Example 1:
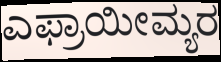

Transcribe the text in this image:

ಎಫ್ರಾಯೀಮ್ಯರ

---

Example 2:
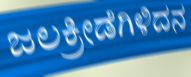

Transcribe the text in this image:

ಜಲಕ್ರೀಡೆಗಿಳಿದನ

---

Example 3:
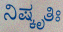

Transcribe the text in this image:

ನಿಷ್ಕೃತಿಃ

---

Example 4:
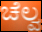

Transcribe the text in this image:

ಚೆಲ್ವ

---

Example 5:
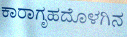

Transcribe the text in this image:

ಕಾರಾಗೃಹದೊಳಗಿನ